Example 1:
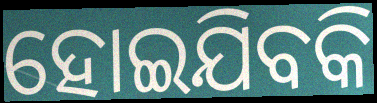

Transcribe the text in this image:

ହୋଇଯିବକି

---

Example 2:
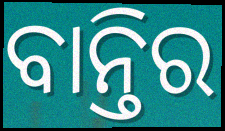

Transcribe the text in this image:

ବାନ୍ତିର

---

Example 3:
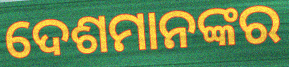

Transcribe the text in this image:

ଦେଶମାନଙ୍କର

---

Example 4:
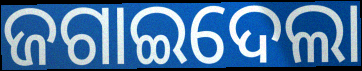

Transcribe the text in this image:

ଜଗାଇଦେଲା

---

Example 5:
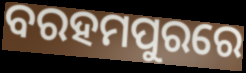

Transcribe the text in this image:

ବରହମପୁରରେ